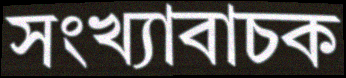
সংখ্যাবাচক